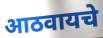
आठवायचे